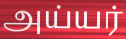
அய்யர்